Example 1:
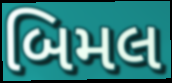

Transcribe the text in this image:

બિમલ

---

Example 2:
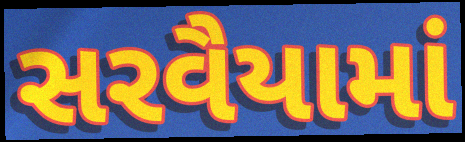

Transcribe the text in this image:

સરવૈયામાં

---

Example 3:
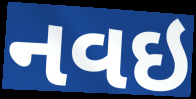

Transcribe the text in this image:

નવઇ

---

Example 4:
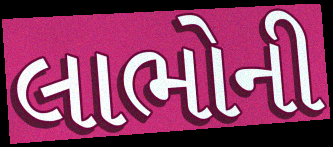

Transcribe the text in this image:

લાભોની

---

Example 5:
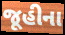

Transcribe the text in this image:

જૂહીના